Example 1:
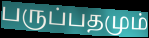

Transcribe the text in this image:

பருப்பதமும்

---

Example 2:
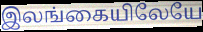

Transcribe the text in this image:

இலங்கையிலேயே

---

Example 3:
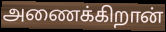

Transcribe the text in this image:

அணைக்கிறான்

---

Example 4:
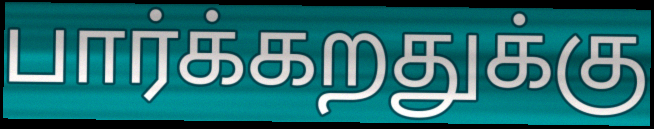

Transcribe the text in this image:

பார்க்கறதுக்கு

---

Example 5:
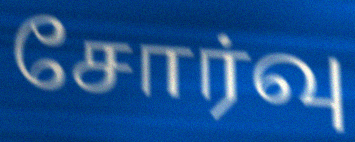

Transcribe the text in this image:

சோர்வு